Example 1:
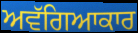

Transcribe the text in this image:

ਅਵੱਗਿਆਕਾਰ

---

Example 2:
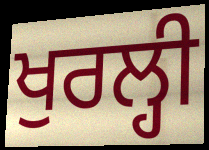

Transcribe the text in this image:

ਖੁਰਲ੍ਹੀ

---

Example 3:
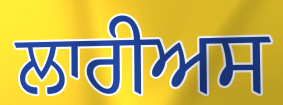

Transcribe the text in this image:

ਲਾਰੀਅਸ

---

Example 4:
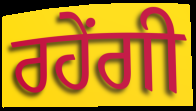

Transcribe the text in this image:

ਰਹੇਂਗੀ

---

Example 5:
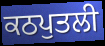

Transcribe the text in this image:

ਕਠਪੁਤਲੀ